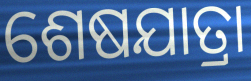
ଶେଷଯାତ୍ରା